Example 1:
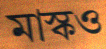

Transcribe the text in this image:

মাস্কও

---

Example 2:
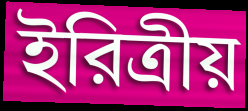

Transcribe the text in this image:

ইরিত্রীয়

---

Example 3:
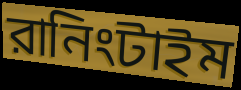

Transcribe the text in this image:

রানিংটাইম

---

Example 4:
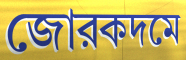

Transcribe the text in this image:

জোরকদমে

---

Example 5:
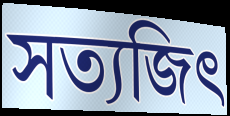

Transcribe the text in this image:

সত্যজিৎ